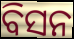
ବିସନ